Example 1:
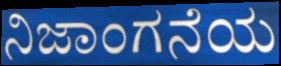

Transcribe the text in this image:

ನಿಜಾಂಗನೆಯ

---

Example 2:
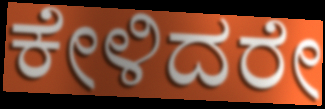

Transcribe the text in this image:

ಕೇಳಿದರೇ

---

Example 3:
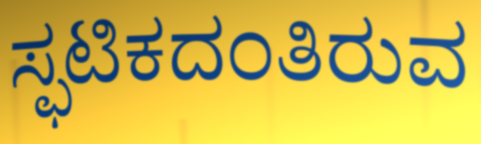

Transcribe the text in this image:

ಸ್ಫಟಿಕದಂತಿರುವ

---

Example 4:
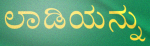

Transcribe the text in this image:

ಲಾಡಿಯನ್ನು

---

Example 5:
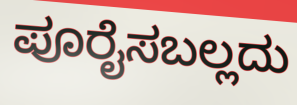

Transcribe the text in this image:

ಪೂರೈಸಬಲ್ಲದು